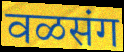
वळसंग